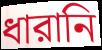
ধারানি